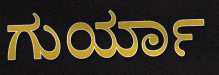
ಗುರ್ಯಾ